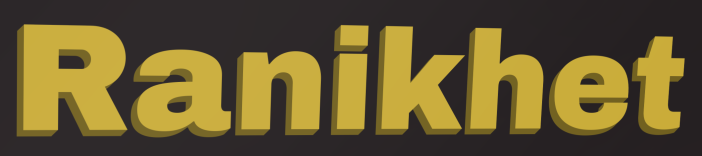
Ranikhet